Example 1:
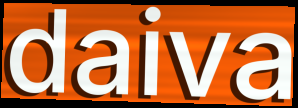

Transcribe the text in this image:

daiva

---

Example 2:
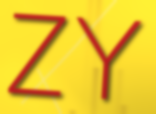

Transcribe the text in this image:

ZY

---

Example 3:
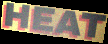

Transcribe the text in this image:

HEAT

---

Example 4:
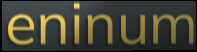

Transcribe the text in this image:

eninum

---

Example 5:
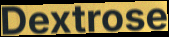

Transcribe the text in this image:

Dextrose